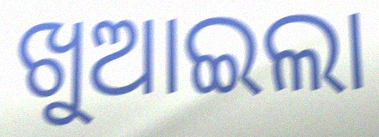
ଖୁଆଇଲା